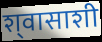
श्वासाशी